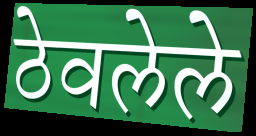
ठेवलेले